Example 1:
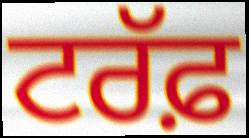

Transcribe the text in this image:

ਟਰੱਫ਼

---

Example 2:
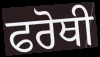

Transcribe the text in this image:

ਫਰੋਥੀ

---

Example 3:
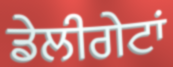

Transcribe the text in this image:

ਡੇਲੀਗੇਟਾਂ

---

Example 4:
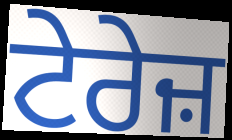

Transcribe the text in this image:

ਟੇਰੇਜ਼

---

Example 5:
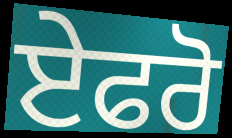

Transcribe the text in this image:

ਏਫਰੋ